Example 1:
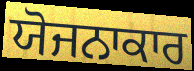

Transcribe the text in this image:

ਯੋਜਨਾਕਾਰ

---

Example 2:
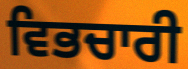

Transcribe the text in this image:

ਵਿਭਚਾਰੀ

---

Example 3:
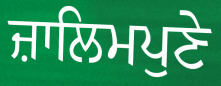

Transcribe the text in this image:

ਜ਼ਾਲਿਮਪੁਣੇ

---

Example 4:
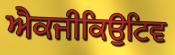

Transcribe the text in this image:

ਐਕਜੀਕਿਉਟਿਵ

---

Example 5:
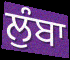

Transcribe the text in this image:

ਲੁੰਬਾ